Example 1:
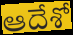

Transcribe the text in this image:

ఆదేశో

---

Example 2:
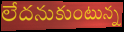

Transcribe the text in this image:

లేదనుకుంటున్న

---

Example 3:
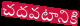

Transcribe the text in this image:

చదవటానికి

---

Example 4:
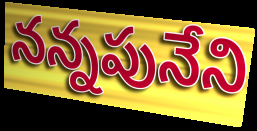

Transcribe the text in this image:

నన్నపునేని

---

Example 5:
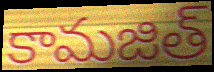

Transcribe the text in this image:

కామజిత్